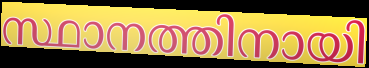
സ്ഥാനത്തിനായി